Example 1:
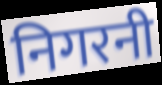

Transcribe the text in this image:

निगरनी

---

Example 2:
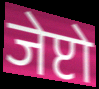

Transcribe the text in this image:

जेप्टो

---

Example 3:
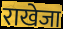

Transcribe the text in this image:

राखेजा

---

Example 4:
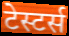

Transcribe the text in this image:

टेस्टर्स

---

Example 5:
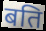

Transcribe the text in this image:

बति